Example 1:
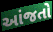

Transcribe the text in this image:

આંજતો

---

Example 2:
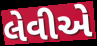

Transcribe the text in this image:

લેવીએ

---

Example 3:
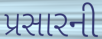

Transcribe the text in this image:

પ્રસારની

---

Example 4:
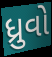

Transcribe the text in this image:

ધ્રુવો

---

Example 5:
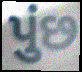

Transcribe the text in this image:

પુંછ